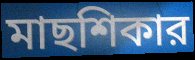
মাছশিকার